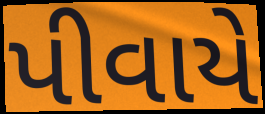
પીવાયે